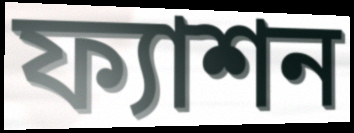
ফ্যাশন